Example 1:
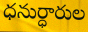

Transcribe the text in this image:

ధనుర్ధారుల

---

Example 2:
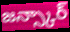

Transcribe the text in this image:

జన్స్కార్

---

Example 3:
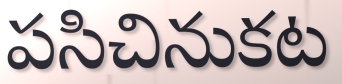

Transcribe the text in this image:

పసిచినుకట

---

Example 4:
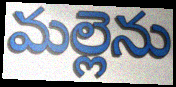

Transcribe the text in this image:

మల్లెను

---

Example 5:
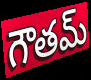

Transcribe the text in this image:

గౌతమ్